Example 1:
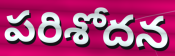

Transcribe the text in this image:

పరిశోదన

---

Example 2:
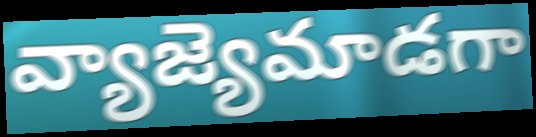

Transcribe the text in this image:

వ్యాజ్యెమాడగా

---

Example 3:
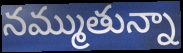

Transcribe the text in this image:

నమ్ముతున్నా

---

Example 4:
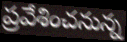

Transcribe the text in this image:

ప్రవేశించనున్న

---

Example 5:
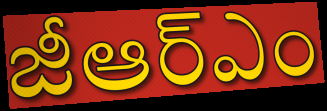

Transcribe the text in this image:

జీఆర్ఎం